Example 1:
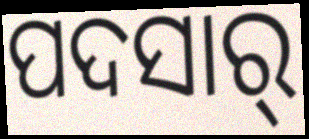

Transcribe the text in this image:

ପଦସାର୍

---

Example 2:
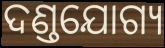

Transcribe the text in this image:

ଦଣ୍ଡଯୋଗ୍ୟ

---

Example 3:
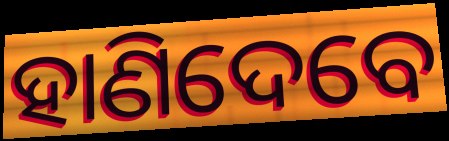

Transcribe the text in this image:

ହାଣିଦେବେ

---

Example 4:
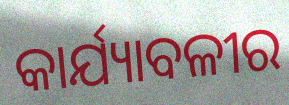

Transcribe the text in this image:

କାର୍ଯ୍ୟାବଳୀର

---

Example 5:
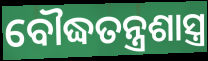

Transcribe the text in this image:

ବୌଦ୍ଧତନ୍ତ୍ରଶାସ୍ତ୍ର